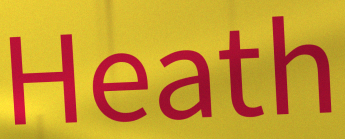
Heath